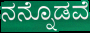
ನನ್ನೊಡವೆ